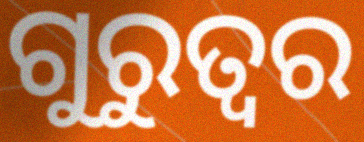
ଗୁରୁତ୍ବର